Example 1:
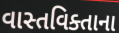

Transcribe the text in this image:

વાસ્તવિક્તાના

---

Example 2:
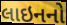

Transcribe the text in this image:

લાઇનનો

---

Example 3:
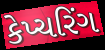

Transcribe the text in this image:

કેપ્ચરિંગ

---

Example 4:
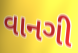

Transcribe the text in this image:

વાનગી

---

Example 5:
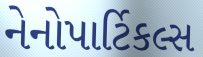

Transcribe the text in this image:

નેનોપાર્ટિકલ્સ